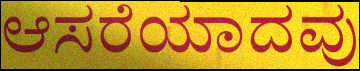
ಆಸರೆಯಾದವು